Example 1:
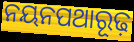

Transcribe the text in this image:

ନୟନପଥାରୂଢ଼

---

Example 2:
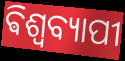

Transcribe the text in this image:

ଵିଶ୍ୱବ୍ୟାପୀ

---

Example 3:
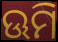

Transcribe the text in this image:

ଊମି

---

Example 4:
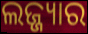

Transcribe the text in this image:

ଲଜ୍ଜ୍ୟାର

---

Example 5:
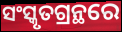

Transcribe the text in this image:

ସଂସ୍କୃତଗ୍ରନ୍ଥରେ